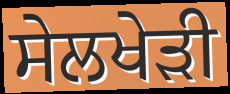
ਸੇਲਖੇੜੀ